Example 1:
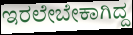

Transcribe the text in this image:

ಇರಲೇಬೇಕಾಗಿದ್ದ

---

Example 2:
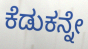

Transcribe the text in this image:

ಕೆಡುಕನ್ನೇ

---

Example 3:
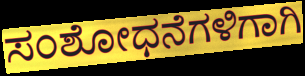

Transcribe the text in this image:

ಸಂಶೋಧನೆಗಳಿಗಾಗಿ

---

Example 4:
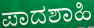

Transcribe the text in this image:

ಪಾದಶಾಹಿ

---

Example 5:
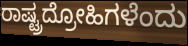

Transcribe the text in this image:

ರಾಷ್ಟ್ರದ್ರೋಹಿಗಳೆಂದು